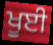
ਖੂਈ